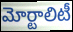
మోర్టాలిటీ